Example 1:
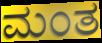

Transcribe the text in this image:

ಮಂತ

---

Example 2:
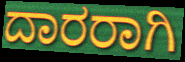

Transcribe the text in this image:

ದಾರರಾಗಿ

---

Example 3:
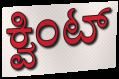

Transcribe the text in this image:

ಕ್ವಿಂಟ್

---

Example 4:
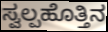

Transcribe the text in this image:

ಸ್ವಲ್ಪಹೊತ್ತಿನ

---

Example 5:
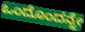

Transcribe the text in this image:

ಒಂದೊಂದನ್ನೇ